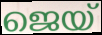
ജെയ്